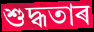
শুদ্ধতাৰ